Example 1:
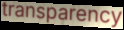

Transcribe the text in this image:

transparency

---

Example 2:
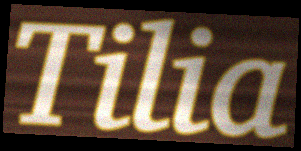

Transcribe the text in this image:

Tilia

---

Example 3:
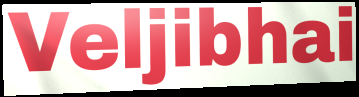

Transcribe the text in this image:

Veljibhai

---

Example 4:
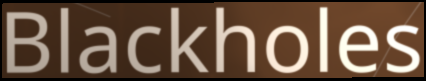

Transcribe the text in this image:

Blackholes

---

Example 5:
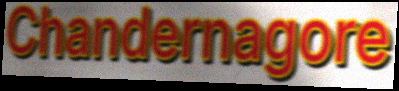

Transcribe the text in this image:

Chandernagore